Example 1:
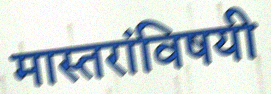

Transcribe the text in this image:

मास्तरांविषयी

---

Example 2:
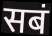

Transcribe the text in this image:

सबं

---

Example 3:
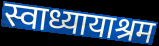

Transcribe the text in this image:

स्वाध्यायाश्रम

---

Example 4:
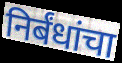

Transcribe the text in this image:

निर्बंधांचा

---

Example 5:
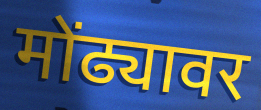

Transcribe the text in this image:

मोंढ्यावर